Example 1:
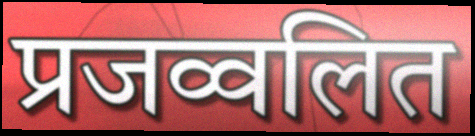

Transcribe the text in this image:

प्रजव्वलित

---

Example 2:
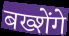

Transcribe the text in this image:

बख्शेंगे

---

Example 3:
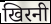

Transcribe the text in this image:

खिरनी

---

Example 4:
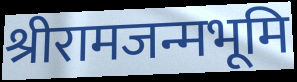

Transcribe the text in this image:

श्रीरामजन्मभूमि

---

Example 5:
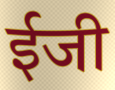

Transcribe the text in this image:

ईजी